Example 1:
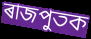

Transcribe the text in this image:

ৰাজপুতক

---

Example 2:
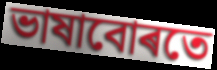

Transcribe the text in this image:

ভাষাবোৰতে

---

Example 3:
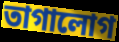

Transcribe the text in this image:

তাগালোগ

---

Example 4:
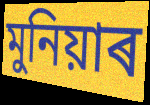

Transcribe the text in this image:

মুনিয়াৰ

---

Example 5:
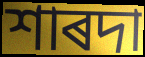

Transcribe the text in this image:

শাৰদা